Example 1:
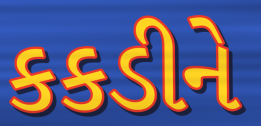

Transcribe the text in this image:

કકડીને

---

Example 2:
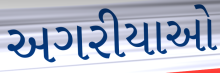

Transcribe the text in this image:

અગરીયાઓ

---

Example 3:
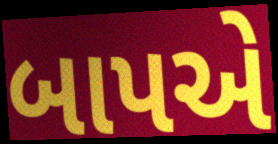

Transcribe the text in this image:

બાપએ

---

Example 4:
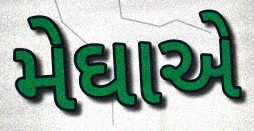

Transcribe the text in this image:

મેઘાએ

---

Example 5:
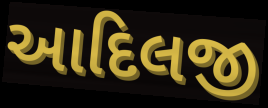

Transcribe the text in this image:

આદિલજી